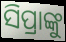
ସିପ୍ରାଙ୍କୁ